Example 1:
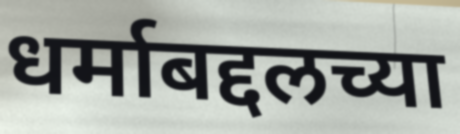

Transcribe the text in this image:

धर्माबद्दलच्या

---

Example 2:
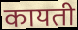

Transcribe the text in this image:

कायती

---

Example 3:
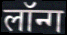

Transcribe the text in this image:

लॉन्ग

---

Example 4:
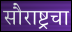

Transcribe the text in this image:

सौराष्ट्रचा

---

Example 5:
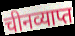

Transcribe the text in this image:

चीनव्याप्त